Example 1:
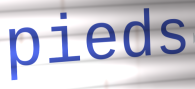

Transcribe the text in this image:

pieds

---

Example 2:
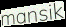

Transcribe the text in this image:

mansik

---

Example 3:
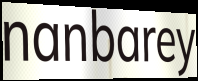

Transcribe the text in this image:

nanbarey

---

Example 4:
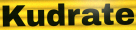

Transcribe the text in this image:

Kudrate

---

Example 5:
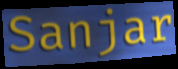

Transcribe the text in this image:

Sanjar